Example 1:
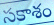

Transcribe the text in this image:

సకాశం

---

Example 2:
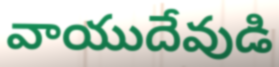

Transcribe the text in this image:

వాయుదేవుడి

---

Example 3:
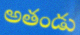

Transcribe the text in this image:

అతండు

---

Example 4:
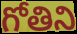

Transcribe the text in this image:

గోతిని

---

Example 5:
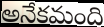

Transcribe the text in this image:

అనేకమంది